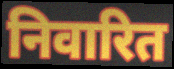
निवारित